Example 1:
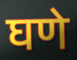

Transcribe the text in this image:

घणे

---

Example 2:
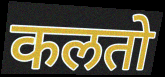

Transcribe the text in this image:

कलतो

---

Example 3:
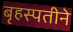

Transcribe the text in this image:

बृहस्पतीने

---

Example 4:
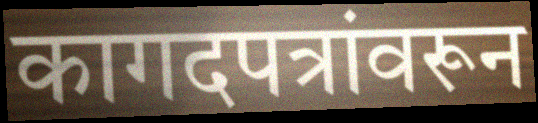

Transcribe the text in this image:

कागदपत्रांवरून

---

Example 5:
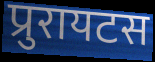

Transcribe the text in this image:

प्रुरायटस